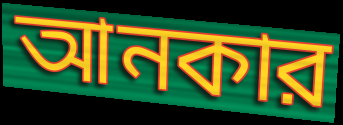
আনকার